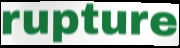
rupture